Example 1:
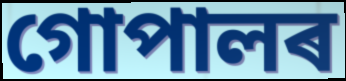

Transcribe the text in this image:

গোপালৰ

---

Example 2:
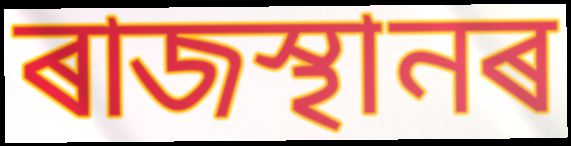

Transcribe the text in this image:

ৰাজস্থানৰ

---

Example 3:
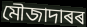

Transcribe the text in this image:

মৌজাদাৰৰ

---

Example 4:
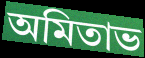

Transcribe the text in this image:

অমিতাভ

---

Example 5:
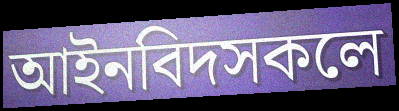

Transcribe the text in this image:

আইনবিদসকলে